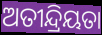
ଅତୀନ୍ଦ୍ରିୟତା